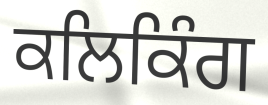
ਕਲਿਕਿੰਗ